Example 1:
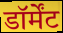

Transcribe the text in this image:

डॉर्मेंट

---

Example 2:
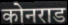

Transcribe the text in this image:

कोनराड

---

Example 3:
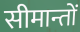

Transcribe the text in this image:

सीमान्तों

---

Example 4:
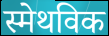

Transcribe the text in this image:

स्मेथविक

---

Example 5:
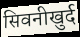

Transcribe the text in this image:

सिवनीखुर्द